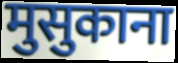
मुसुकाना